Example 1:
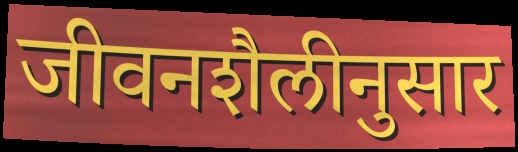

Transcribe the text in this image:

जीवनशैलीनुसार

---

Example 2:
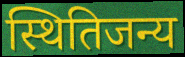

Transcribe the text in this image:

स्थितिजन्य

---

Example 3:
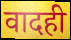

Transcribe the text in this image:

वादही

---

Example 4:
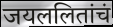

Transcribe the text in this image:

जयललितांचं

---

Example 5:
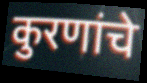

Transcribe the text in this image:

कुरणांचे